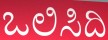
ಒಲಿಸಿದಿ